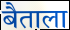
बैताला